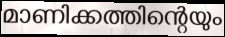
മാണിക്കത്തിന്റെയും